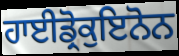
ਹਾਈਡ੍ਰੋਕੁਇਨੋਨ